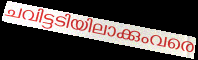
ചവിട്ടടിയിലാക്കുംവരെ